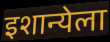
इशान्येला